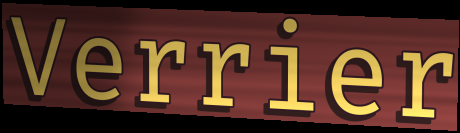
Verrier